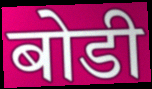
बोडी